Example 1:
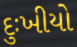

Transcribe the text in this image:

દુઃખીયો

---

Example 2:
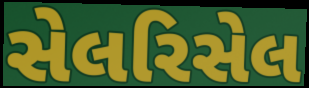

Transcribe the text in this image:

સેલરિસેલ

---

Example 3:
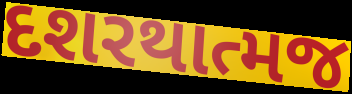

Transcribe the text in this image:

દશરથાત્મજ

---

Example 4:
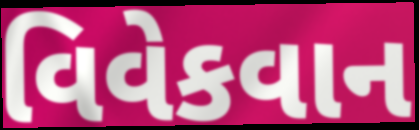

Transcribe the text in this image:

વિવેકવાન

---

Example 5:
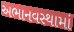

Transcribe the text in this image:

અભાનવસ્થામાં